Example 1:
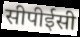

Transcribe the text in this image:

सीपीईसी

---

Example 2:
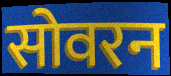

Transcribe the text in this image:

सोवरन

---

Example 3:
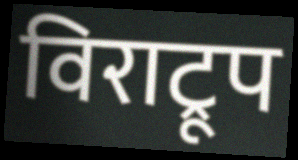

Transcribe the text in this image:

विराट्रूप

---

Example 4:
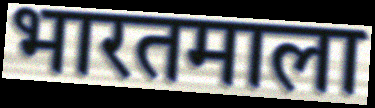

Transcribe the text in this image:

भारतमाला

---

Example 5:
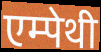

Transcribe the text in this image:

एम्पेथी